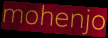
mohenjo